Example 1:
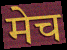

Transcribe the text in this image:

मेच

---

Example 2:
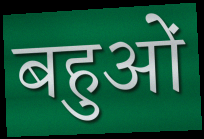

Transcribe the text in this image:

बहुओं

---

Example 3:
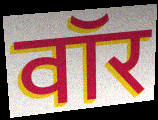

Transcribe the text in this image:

वॉर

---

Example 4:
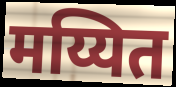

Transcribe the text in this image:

मय्यित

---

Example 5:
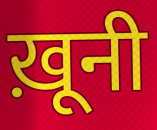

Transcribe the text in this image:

ख़ूनी